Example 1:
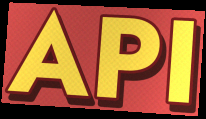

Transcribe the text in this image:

API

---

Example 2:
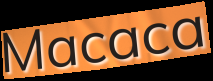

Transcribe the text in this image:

Macaca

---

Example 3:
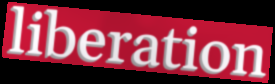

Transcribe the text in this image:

liberation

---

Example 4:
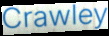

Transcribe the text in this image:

Crawley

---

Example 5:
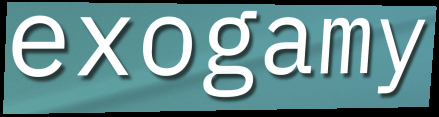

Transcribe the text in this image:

exogamy